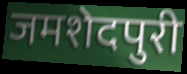
जमशेदपुरी